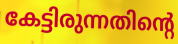
കേട്ടിരുന്നതിന്റെ